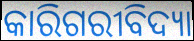
କାରିଗରୀବିଦ୍ୟା